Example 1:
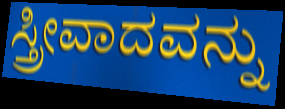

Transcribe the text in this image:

ಸ್ತ್ರೀವಾದವನ್ನು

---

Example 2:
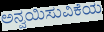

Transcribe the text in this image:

ಅನ್ವಯಿಸುವಿಕೆಯ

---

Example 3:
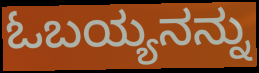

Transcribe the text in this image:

ಓಬಯ್ಯನನ್ನು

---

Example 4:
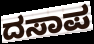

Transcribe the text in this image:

ದಸಾಪ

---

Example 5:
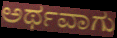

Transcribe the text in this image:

ಅರ್ಥವಾಗು